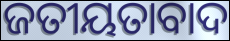
ଜତୀୟତାବାଦ